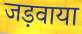
जड़वाया